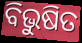
ବିଭୁଷିତ